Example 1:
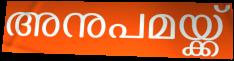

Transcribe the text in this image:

അനുപമയ്ക്ക്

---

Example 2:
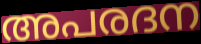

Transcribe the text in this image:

അപരദന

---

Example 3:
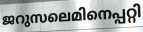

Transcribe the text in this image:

ജറുസലെമിനെപ്പറ്റി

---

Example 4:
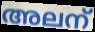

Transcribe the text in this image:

അലന്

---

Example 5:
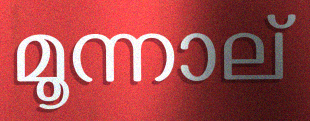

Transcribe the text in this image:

മൂന്നാല്